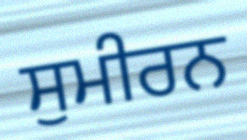
ਸੁਮੀਰਨ